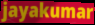
jayakumar